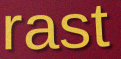
rast